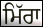
ਮਿੱਰਾ